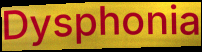
Dysphonia